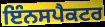
ਇੰਨਸਪੈਕਟਰ